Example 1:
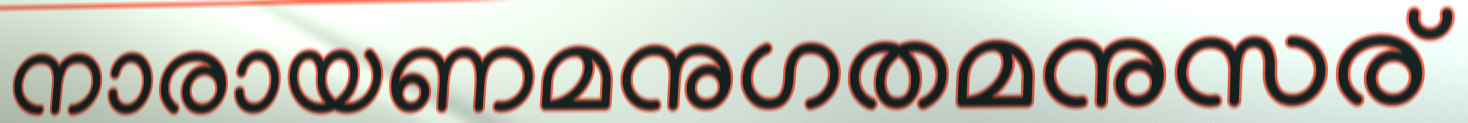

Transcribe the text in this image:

നാരായണമനുഗതമനുസര്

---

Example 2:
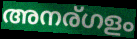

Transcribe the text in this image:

അനര്ഗളം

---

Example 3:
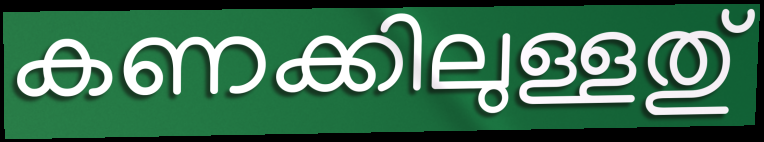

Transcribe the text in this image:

കണക്കിലുള്ളതു്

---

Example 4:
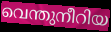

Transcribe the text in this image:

വെന്തുനീറിയ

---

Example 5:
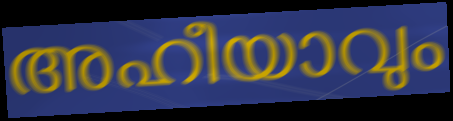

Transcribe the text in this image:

അഹീയാവും